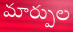
మార్పుల